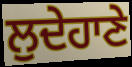
ਲੁਦੇਹਾਣੇ